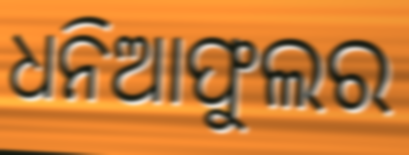
ଧନିଆଫୁଲର